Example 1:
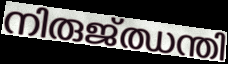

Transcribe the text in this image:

നിരുജ്ഝന്തി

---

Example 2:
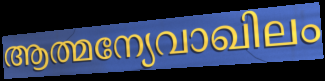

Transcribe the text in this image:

ആത്മന്യേവാഖിലം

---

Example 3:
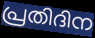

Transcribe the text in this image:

പ്രതിദിന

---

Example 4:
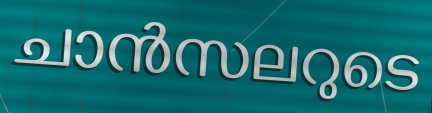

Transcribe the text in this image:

ചാൻസലറുടെ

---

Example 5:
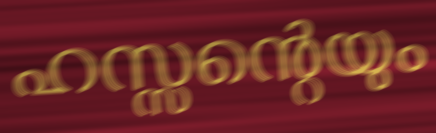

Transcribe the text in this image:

ഹസ്സന്റെയും